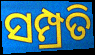
ସମ୍ପ୍ରତି